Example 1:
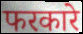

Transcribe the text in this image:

फरकारे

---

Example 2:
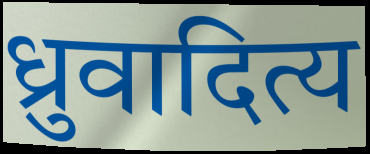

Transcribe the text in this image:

ध्रुवादित्य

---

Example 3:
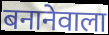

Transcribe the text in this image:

बनानेवाला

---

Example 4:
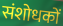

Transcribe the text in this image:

संशोधकों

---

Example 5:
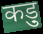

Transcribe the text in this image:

कड़ु